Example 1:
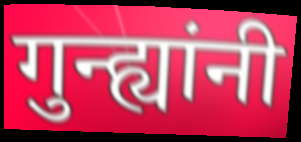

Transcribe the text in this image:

गुन्ह्यांनी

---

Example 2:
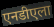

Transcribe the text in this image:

एनडीएला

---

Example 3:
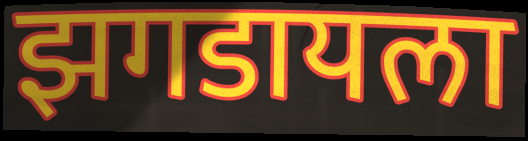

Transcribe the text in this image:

झगडायला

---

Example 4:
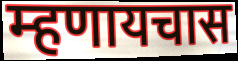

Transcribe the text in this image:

म्हणायचास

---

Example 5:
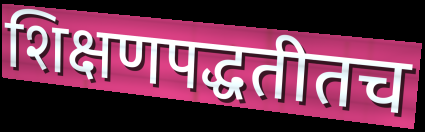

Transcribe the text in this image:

शिक्षणपद्धतीतच